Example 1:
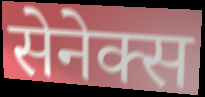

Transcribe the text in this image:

सेनेक्स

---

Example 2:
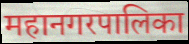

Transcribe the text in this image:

महानगरपालिका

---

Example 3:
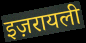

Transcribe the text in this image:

इज़रायली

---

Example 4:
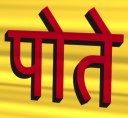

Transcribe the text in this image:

पोते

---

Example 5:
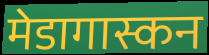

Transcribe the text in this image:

मेडागास्कन